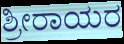
ಶ್ರೀರಾಯರ